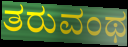
ತರುವಂಥ